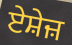
ਏਸ਼ੇਜ਼